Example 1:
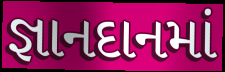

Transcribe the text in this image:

જ્ઞાનદાનમાં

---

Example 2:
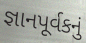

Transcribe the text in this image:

જ્ઞાનપૂર્વકનું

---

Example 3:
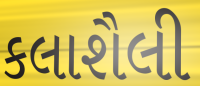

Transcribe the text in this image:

કલાશૈલી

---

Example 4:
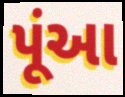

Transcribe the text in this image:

પૂંઆ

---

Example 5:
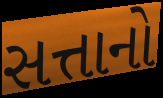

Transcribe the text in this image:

સત્તાનો